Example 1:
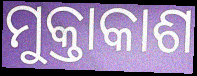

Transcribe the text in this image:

ମୁକ୍ତାକାଶ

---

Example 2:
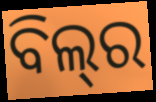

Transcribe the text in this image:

ବିଲ୍‌ର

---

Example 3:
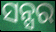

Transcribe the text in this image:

ସନ୍ସର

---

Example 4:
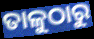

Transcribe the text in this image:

ତାଳୁଠାରୁ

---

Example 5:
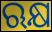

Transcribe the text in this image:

ଋକ୍ଷ